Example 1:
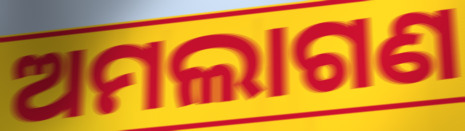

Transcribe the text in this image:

ଅମଲାଗଣ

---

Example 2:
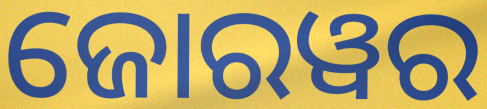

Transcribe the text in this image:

ଜୋରୱର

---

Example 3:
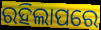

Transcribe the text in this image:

ରହିଲାପରେ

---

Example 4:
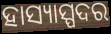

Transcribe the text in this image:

ହାସ୍ୟାସ୍ପଦର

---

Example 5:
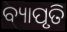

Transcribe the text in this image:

ବ୍ୟାପୃତି